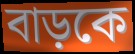
বাড়কে